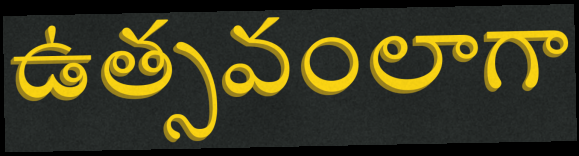
ఉత్సవంలాగా